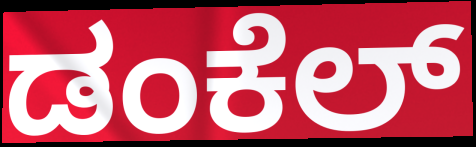
ಡಂಕೆಲ್